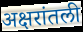
अक्षरांतली